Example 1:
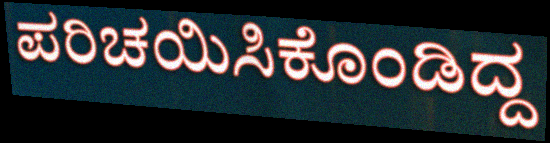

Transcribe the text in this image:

ಪರಿಚಯಿಸಿಕೊಂಡಿದ್ದ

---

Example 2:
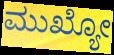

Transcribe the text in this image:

ಮುಖ್ಯೋ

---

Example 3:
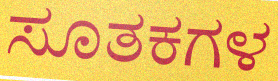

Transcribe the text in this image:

ಸೂತಕಗಳ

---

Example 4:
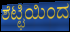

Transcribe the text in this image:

ಶೆಟ್ಟಿಯಿಂದ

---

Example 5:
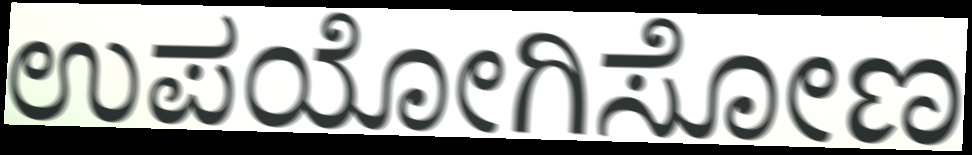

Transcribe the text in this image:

ಉಪಯೋಗಿಸೋಣ